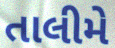
તાલીમે